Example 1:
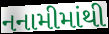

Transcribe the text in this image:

નનામીમાંથી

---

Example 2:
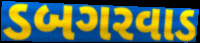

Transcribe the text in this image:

ડબગરવાડ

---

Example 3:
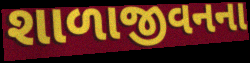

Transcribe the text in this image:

શાળાજીવનના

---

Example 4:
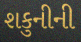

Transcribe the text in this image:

શકુનીની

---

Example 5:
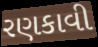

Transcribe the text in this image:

રણકાવી